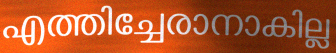
എത്തിച്ചേരാനാകില്ല